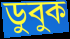
ডুবুক